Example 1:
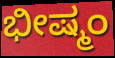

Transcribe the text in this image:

ಭೀಷ್ಮಂ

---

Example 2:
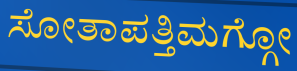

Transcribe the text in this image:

ಸೋತಾಪತ್ತಿಮಗ್ಗೋ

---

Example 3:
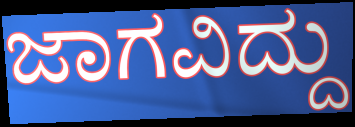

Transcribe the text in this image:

ಜಾಗವಿದ್ದು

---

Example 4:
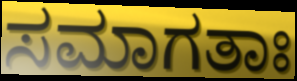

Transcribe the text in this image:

ಸಮಾಗತಾಃ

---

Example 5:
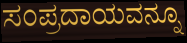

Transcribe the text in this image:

ಸಂಪ್ರದಾಯವನ್ನೂ